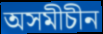
অসমীচীন